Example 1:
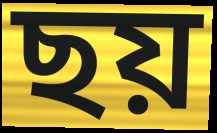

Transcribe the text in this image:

ছয়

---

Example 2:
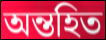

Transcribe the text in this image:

অন্তহিত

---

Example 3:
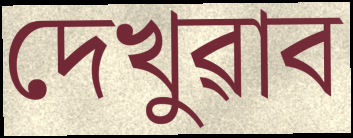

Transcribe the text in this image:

দেখুৱাব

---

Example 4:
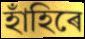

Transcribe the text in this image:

হাঁহিৰে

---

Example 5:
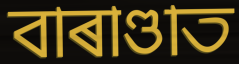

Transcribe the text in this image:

বাৰাণ্ডাত